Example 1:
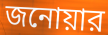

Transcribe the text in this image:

জনোয়ার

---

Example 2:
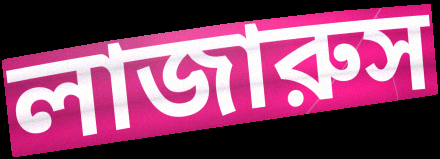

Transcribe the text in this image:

লাজারুস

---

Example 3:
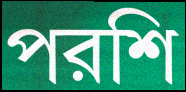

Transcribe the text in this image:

পরশি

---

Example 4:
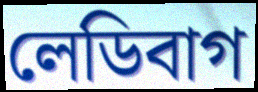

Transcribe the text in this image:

লেডিবাগ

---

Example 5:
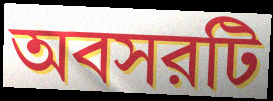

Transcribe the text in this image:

অবসরটি